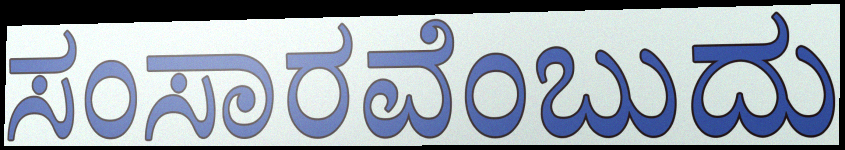
ಸಂಸಾರವೆಂಬುದು